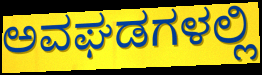
ಅವಘಡಗಳಲ್ಲಿ